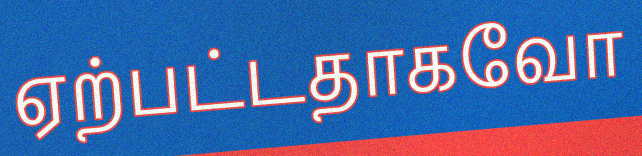
ஏற்பட்டதாகவோ